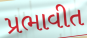
પ્રભાવીત